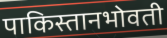
पाकिस्तानभोवती